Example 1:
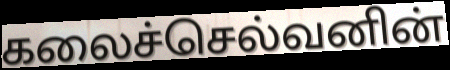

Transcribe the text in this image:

கலைச்செல்வனின்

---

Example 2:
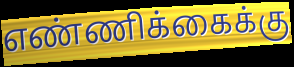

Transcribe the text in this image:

எண்ணிக்கைக்கு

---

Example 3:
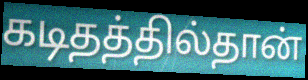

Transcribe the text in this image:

கடிதத்தில்தான்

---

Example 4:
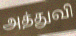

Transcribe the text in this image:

அத்துவி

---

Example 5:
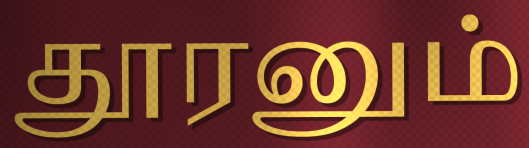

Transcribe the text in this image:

தூரனும்